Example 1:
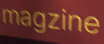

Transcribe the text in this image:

magzine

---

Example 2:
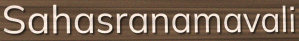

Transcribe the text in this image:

Sahasranamavali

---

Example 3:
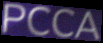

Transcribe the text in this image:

PCCA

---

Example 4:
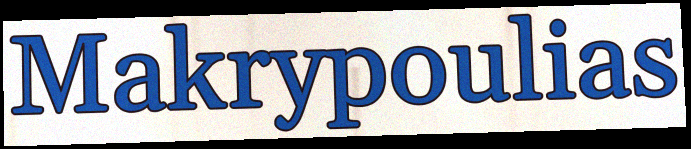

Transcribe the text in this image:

Makrypoulias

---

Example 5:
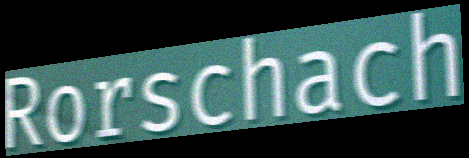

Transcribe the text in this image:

Rorschach